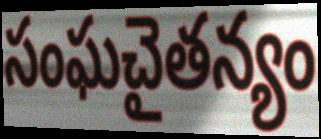
సంఘచైతన్యం